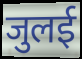
जुलई